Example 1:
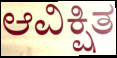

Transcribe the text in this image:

ಆವಿಕ್ಷಿತ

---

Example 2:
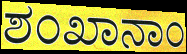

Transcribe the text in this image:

ಶಂಖಾನಾಂ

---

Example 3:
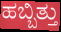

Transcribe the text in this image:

ಹಬ್ಬಿತ್ತು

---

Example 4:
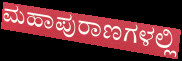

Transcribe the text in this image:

ಮಹಾಪುರಾಣಗಳಲ್ಲಿ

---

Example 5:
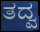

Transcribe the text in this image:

ತದ್ವ